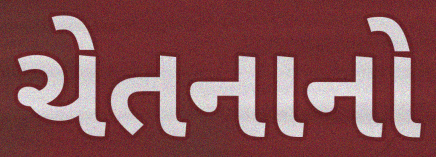
ચેતનાનો